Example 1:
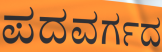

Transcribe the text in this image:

ಪದವರ್ಗದ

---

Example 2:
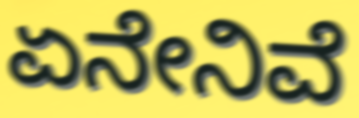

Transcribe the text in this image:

ಏನೇನಿವೆ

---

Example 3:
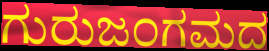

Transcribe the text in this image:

ಗುರುಜಂಗಮದ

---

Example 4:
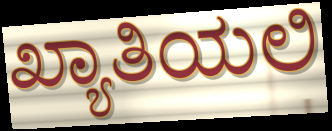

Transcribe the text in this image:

ಖ್ಯಾತಿಯಲಿ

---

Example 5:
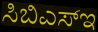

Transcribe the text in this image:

ಸಿಬಿಎಸ್ಇ